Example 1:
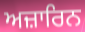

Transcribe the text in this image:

ਅਜ਼ਾਰਿਨ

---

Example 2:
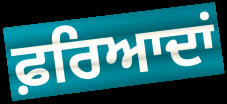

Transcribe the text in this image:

ਫ਼ਰਿਆਦਾਂ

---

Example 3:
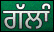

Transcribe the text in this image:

ਗੱਲਾੰ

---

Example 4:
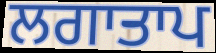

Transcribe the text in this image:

ਲਗਾਤਾਪ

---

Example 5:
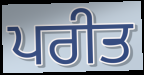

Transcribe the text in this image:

ਪਰੀਤ